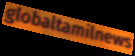
globaltamilnews